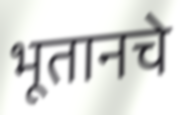
भूतानचे